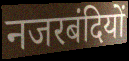
नजरबंदियों